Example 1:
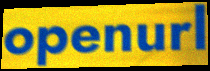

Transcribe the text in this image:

openurl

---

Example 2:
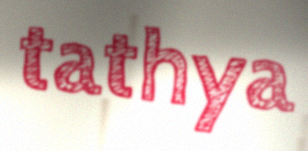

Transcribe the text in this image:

tathya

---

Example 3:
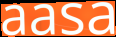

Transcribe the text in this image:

aasa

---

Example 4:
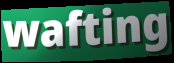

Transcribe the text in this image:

wafting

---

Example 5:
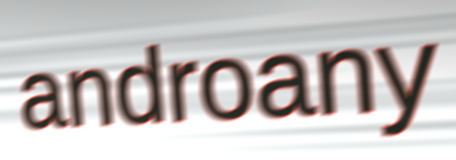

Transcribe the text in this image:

androany